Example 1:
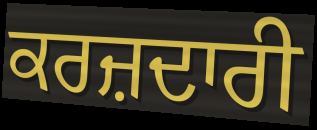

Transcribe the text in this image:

ਕਰਜ਼ਦਾਰੀ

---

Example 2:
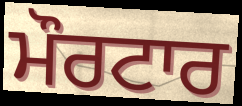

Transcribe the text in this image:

ਮੌਰਟਾਰ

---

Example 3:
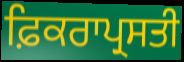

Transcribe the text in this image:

ਫ਼ਿਕਰਾਪ੍ਰਸਤੀ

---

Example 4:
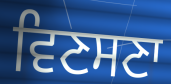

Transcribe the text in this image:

ਵਿਣਸਣਾ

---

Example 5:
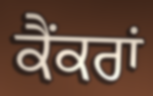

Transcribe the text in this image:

ਕੈਂਕਰਾਂ